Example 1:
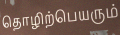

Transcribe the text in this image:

தொழிற்பெயரும்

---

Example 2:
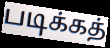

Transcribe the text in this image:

படிக்கத்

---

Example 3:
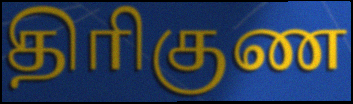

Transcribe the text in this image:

திரிகுண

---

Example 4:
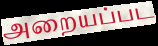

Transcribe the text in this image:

அறையப்பட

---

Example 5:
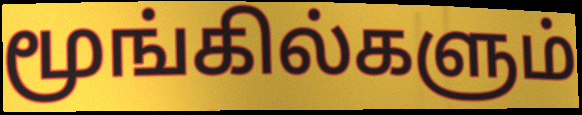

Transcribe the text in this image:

மூங்கில்களும்